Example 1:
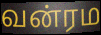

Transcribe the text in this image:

வன்ரம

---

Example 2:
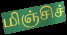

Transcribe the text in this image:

மிஞ்சிச்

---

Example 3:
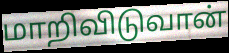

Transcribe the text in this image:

மாறிவிடுவான்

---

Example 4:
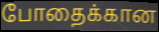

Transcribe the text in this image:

போதைக்கான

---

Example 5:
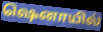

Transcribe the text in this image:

ஷெனாயில்